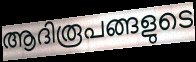
ആദിരൂപങ്ങളുടെ